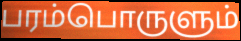
பரம்பொருளும்